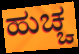
ಹುಚ್ಚ